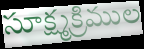
సూక్ష్మక్రిముల